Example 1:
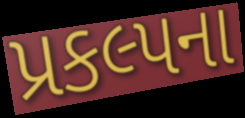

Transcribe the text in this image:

પ્રકલ્પના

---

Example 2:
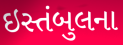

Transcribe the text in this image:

ઇસ્તંબુલના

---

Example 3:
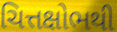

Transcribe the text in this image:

ચિત્તક્ષોભથી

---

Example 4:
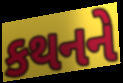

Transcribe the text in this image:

કથનને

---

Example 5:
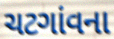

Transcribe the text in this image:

ચટગાંવના